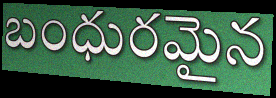
బంధురమైన